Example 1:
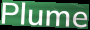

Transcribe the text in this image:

Plume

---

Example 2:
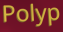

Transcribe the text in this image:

Polyp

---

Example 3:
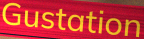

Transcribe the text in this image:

Gustation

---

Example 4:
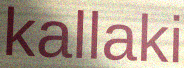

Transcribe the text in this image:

kallaki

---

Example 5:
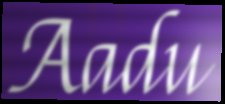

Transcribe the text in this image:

Aadu